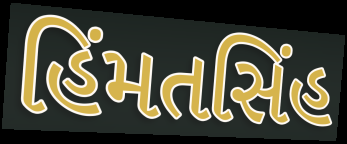
હિંમતસિંહ